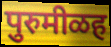
पुरुमीळह